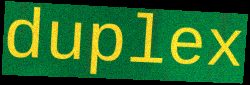
duplex